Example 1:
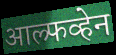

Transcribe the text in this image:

आल्फव्हेन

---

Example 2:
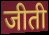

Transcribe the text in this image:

जीती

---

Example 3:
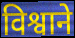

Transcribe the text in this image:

विश्वाने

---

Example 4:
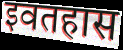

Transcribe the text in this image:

इवतहास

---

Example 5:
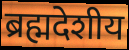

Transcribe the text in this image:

ब्रह्मदेशीय